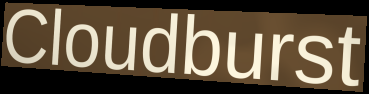
Cloudburst